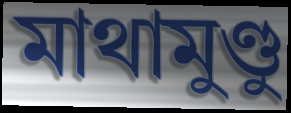
মাথামুণ্ডু